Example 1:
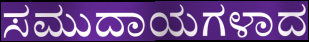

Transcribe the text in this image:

ಸಮುದಾಯಗಳಾದ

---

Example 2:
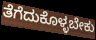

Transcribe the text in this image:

ತೆಗೆದುಕೊಳ್ಳಬೇಕು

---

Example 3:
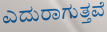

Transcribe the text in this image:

ಎದುರಾಗುತ್ತವೆ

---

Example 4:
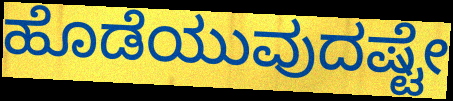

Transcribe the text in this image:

ಹೊಡೆಯುವುದಷ್ಟೇ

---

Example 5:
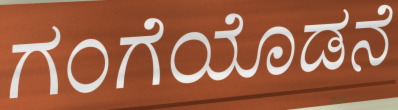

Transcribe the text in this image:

ಗಂಗೆಯೊಡನೆ